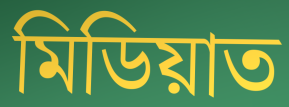
মিডিয়াত